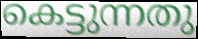
കെട്ടുന്നതു